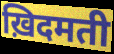
ख़िदमती